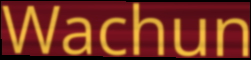
Wachun